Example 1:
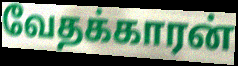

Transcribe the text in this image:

வேதக்காரன்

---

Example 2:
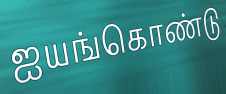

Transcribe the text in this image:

ஐயங்கொண்டு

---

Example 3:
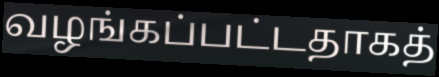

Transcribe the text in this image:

வழங்கப்பட்டதாகத்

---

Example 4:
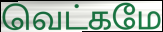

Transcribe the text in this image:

வெட்கமே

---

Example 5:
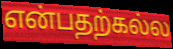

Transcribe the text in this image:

என்பதற்கல்ல